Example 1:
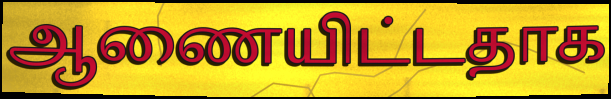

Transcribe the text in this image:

ஆணையிட்டதாக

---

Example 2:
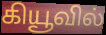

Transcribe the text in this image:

கியூவில்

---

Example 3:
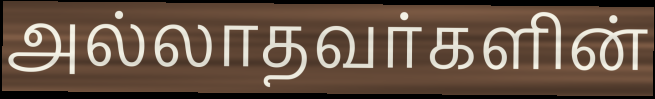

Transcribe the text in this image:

அல்லாதவர்களின்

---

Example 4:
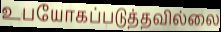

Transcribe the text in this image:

உபயோகப்படுத்தவில்லை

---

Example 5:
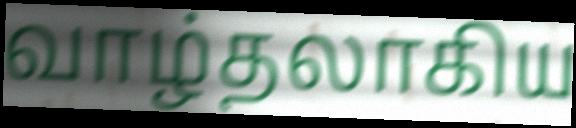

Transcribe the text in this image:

வாழ்தலாகிய